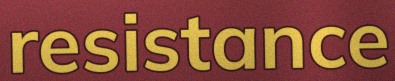
resistance